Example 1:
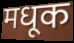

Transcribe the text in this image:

मधूक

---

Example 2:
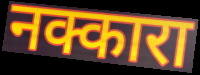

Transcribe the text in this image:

नक्कारा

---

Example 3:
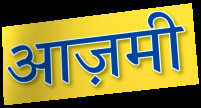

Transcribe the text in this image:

आज़मी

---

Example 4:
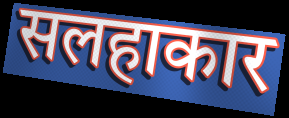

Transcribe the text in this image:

सलहाकार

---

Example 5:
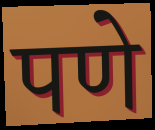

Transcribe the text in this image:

पणे